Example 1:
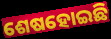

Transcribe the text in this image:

ଶେଷହୋଇଛି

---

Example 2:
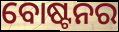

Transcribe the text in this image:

ବୋଷ୍ଟନର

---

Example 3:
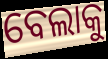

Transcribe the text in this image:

ବେଲାକୁ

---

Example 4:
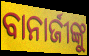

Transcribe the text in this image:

ବାନାର୍ଜୀଙ୍କୁ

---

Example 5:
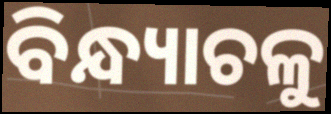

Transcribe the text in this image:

ବିନ୍ଧ୍ୟାଚଳୁ